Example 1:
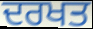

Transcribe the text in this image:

ਦਰਖਤ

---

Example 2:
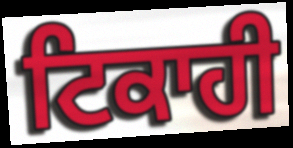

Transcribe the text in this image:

ਟਿਕਾਹੀ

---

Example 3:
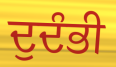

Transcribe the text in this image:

ਦੁਦੰਭੀ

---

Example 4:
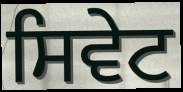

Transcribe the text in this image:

ਸਿਵੇਟ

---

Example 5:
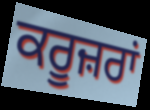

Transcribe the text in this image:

ਕਰੂਜ਼ਰਾਂ